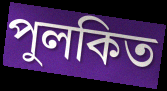
পুলকিত